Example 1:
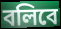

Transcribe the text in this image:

বলিবে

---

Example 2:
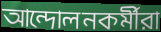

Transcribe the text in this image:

আন্দোলনকর্মীরা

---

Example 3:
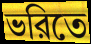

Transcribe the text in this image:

ভরিতে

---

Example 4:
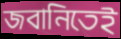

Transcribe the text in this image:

জবানিতেই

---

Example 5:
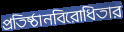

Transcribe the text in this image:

প্রতিষ্ঠানবিরোধিতার